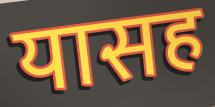
यासह